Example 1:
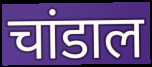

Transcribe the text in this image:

चांडाल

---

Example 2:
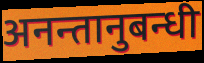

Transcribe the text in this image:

अनन्तानुबन्धी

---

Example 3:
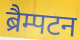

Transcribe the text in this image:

ब्रैम्पटन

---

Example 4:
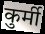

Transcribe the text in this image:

कुर्मी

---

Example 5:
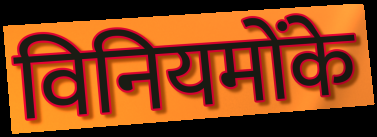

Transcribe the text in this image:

विनियमोंके